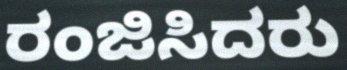
ರಂಜಿಸಿದರು